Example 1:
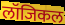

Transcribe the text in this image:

लॉजिकल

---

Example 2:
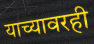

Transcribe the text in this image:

याच्यावरही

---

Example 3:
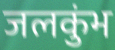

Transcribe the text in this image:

जलकुंभ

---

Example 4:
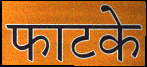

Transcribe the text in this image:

फाटके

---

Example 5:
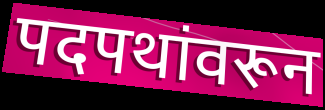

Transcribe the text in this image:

पदपथांवरून